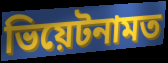
ভিয়েটনামত